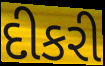
દીકરી